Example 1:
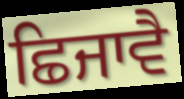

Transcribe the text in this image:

ਛਿਜਾਵੈ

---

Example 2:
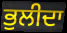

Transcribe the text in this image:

ਭੁਲੀਦਾ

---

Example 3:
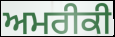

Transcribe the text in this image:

ਅਮਰੀਕੀ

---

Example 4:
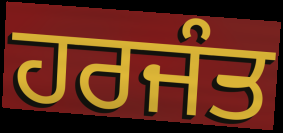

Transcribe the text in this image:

ਹਰਜੰਤ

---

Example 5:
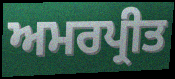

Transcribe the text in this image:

ਅਮਰਪ੍ਰੀਤ